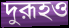
দুরূহও